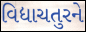
વિદ્યાચતુરને